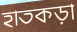
হাতকড়া